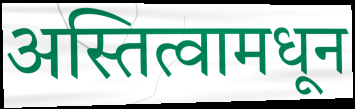
अस्तित्वामधून